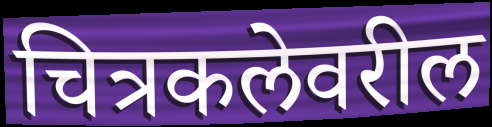
चित्रकलेवरील